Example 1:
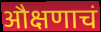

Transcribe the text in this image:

औक्षणाचं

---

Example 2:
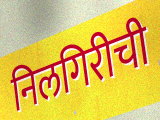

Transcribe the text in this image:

निलगिरीची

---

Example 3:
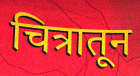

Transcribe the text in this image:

चित्रातून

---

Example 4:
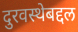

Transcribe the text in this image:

दुरवस्थेबद्दल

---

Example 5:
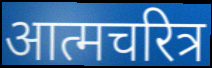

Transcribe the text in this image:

आत्मचरित्र